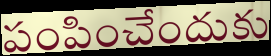
పంపించేందుకు